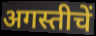
अगस्तीचें